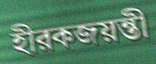
হীরকজয়ন্তী